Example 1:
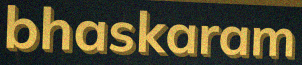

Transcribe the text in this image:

bhaskaram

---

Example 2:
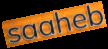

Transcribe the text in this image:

saaheb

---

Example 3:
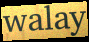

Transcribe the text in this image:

walay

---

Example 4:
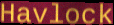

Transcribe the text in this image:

Havlock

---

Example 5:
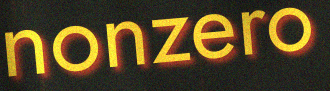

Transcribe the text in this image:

nonzero